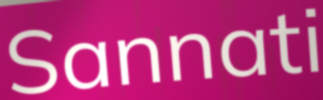
Sannati